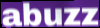
abuzz